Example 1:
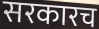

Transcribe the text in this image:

सरकारच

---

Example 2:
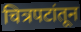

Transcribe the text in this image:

चित्रपटांतून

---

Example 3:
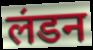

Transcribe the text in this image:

लंडन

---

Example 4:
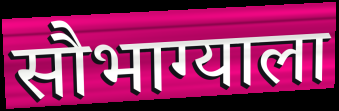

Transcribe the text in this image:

सौभाग्याला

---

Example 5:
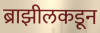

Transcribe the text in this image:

ब्राझीलकडून